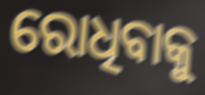
ରୋଧିବାକୁ